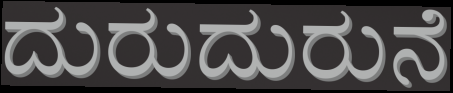
ದುರುದುರುನೆ